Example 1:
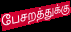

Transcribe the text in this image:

பேசறத்துக்கு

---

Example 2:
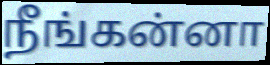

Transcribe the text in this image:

நீங்கன்னா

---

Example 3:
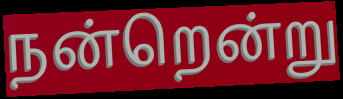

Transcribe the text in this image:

நன்றென்று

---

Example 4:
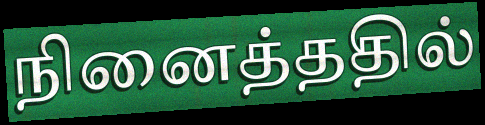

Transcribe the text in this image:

நினைத்ததில்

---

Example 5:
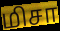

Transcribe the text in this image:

மிசா